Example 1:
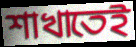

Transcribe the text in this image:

শাখাতেই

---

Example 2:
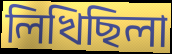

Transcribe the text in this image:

লিখিছিলা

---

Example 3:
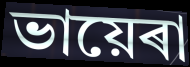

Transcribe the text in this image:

ভায়েৰা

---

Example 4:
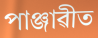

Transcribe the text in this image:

পাঞ্জাৱীত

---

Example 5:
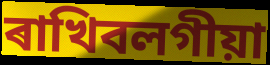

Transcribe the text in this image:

ৰাখিবলগীয়া